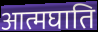
आत्मघाति